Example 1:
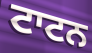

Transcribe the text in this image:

ਟਾਟਨ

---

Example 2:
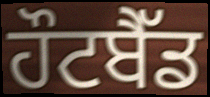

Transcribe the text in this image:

ਹੌਟਬੈੱਡ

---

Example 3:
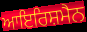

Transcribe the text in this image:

ਆਇਰਿਸ਼ਮੈਨ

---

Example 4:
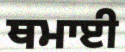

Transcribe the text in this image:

ਥਮਾਈ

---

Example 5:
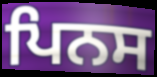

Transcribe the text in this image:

ਪਿਨਸ